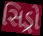
સિડ્રો